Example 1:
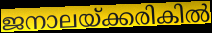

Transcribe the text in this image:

ജനാലയ്ക്കരികിൽ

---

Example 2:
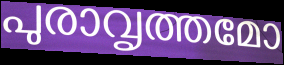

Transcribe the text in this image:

പുരാവൃത്തമോ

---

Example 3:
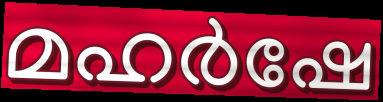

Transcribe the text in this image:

മഹർഷേ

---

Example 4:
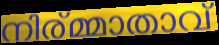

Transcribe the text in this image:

നിര്മ്മാതാവ്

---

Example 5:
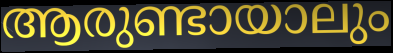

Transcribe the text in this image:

ആരുണ്ടായാലും